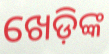
ଖେଡ଼ିଙ୍କ